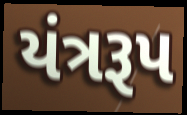
યંત્રરૂપ